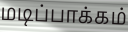
மடிப்பாக்கம்